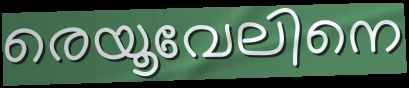
രെയൂവേലിനെ